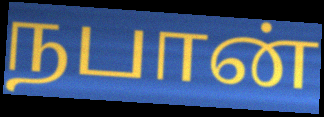
நபான்